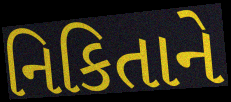
નિકિતાને